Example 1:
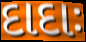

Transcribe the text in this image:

દાદાઃ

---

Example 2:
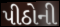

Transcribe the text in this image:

પીઠોની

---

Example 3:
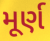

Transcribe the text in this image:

મૂર્ણ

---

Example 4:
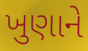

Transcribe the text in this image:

ખુણાને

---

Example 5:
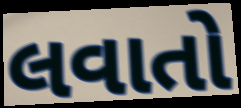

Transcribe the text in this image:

લવાતો